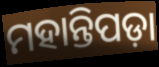
ମହାନ୍ତିପଡ଼ା